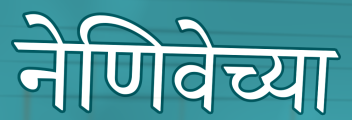
नेणिवेच्या